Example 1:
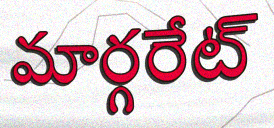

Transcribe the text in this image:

మార్గరేట్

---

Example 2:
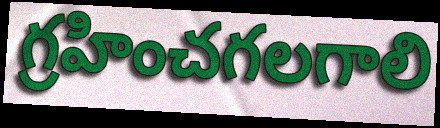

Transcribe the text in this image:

గ్రహించగలగాలి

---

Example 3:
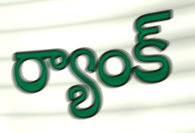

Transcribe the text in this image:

ర్యాంక్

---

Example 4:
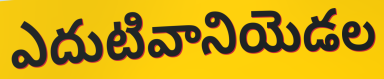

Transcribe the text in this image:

ఎదుటివానియెడల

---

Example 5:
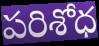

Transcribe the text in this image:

పరిశోధ